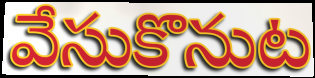
వేసుకొనుట